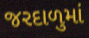
જરદાળુમાં